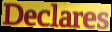
Declares